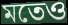
মতেও